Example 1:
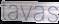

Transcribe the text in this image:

tavas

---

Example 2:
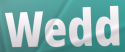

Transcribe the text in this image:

Wedd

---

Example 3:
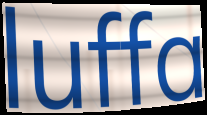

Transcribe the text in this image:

luffa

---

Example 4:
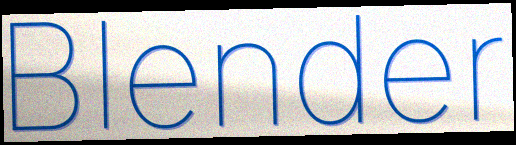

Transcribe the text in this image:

Blender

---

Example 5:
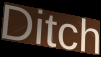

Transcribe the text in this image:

Ditch